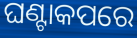
ଘଣ୍ଟାକପରେ